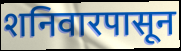
शनिवारपासून